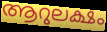
ആറുലക്ഷം